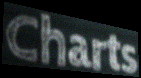
Charts